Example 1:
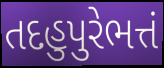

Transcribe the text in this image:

તદહુપુરેભત્તં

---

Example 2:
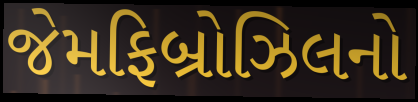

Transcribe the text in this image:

જેમફિબ્રોઝિલનો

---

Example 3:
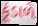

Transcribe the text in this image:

કૂંડાળે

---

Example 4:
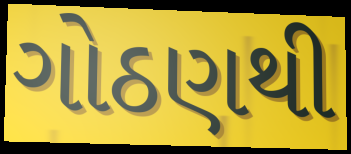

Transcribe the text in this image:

ગોઠણથી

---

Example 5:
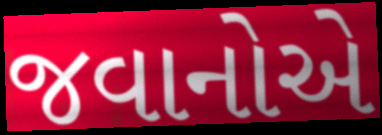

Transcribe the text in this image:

જવાનોએ